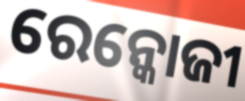
ରେନ୍କୋଜୀ